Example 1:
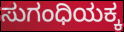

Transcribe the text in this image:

ಸುಗಂಧಿಯಕ್ಕ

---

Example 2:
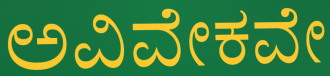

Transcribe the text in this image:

ಅವಿವೇಕವೇ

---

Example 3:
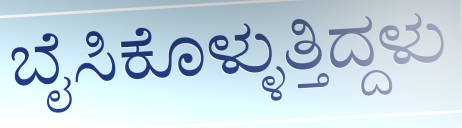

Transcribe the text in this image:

ಬೈಸಿಕೊಳ್ಳುತ್ತಿದ್ದಳು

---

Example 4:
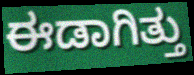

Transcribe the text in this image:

ಈಡಾಗಿತ್ತು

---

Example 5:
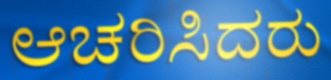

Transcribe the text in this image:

ಆಚರಿಸಿದರು